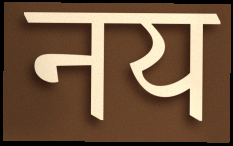
नय